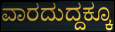
ವಾರದುದ್ದಕ್ಕೂ